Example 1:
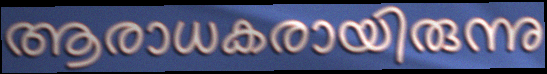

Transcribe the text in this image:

ആരാധകരായിരുന്നു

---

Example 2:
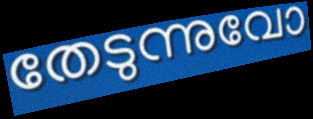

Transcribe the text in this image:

തേടുന്നുവോ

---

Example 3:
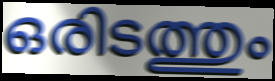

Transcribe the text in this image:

ഒരിടത്തും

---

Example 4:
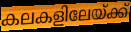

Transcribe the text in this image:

കലകളിലേയ്ക്ക്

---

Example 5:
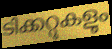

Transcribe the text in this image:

ടിക്കറ്റുകളും